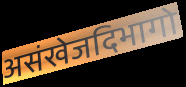
असंखेजदिभागो